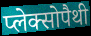
प्लेक्सोपैथी